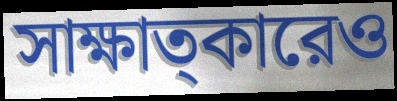
সাক্ষাত্কারেও